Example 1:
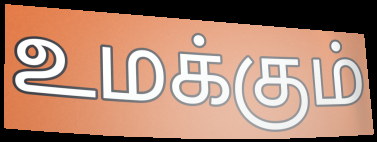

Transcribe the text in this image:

உமக்கும்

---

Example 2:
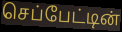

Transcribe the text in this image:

செப்பேட்டின்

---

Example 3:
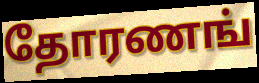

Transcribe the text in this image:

தோரணங்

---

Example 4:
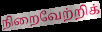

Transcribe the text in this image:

நிறைவேற்றிக்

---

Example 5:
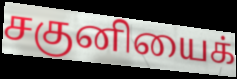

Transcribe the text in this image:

சகுனியைக்